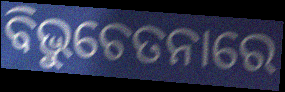
ବିଭୁଚେତନାରେ